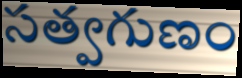
సత్వగుణం